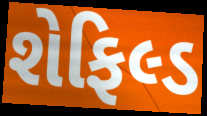
શેફિલ્ડ